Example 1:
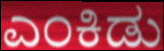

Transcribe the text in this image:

ಎಂಕಿಡು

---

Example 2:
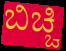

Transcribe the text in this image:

ಬಿಚ್ಚಿ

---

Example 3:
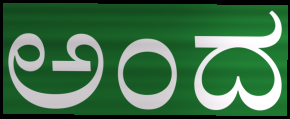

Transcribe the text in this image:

ಅಂದ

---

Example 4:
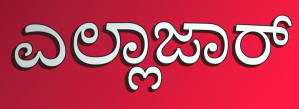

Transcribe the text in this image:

ಎಲ್ಲಾಜಾರ್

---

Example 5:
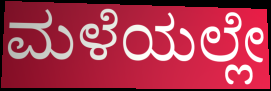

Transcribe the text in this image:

ಮಳೆಯಲ್ಲೇ